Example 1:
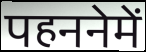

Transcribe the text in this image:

पहननेमें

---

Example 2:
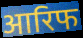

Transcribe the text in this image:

आरिफ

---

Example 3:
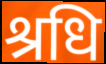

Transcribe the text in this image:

श्रधि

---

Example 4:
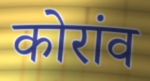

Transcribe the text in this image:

कोरांव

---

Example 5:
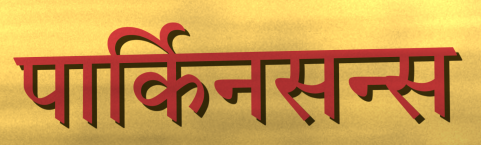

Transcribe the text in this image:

पार्किनसन्स